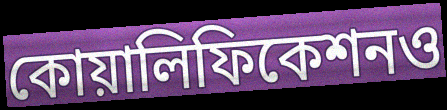
কোয়ালিফিকেশনও